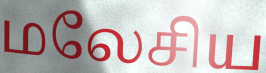
மலேசிய